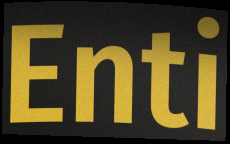
Enti